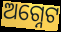
ଅଗ୍ନେଟ